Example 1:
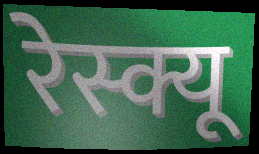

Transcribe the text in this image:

रेस्क्यू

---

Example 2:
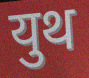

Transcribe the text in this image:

युथ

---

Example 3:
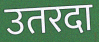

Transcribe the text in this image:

उतरदा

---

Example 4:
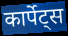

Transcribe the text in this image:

कार्पेट्स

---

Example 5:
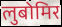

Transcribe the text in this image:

लुबोमिर